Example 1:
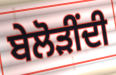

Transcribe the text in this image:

ਬੇਲੋੜੀਂਦੀ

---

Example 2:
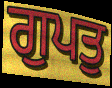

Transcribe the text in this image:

ਗੁਪਤੁ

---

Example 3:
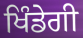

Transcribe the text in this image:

ਖਿੰਡੇਗੀ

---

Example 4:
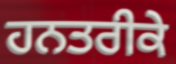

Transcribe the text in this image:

ਹਨਤਰੀਕੇ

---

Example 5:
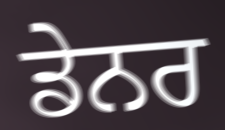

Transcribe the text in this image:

ਡੇਨਰ